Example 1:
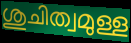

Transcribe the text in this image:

ശുചിത്വമുള്ള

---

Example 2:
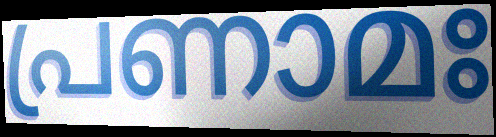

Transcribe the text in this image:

പ്രണാമഃ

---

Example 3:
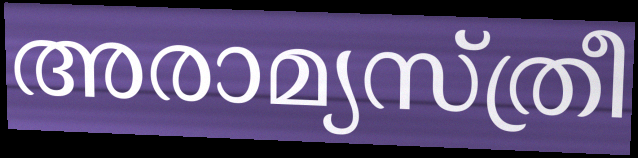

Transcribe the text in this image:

അരാമ്യസ്ത്രീ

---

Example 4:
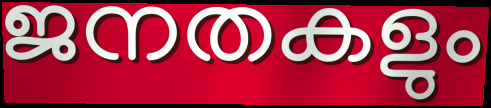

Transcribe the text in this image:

ജനതകളും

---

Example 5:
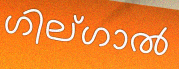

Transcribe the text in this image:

ഗില്ഗാൽ